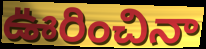
ఊరించినా